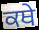
ਕਥੇ